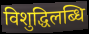
विशुद्धिलब्धि